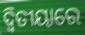
ଦ୍ଵିତୀୟାରେ